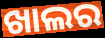
ଖାଲର